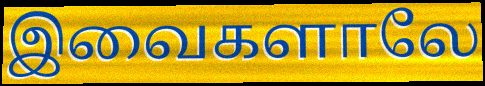
இவைகளாலே